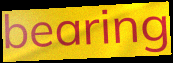
bearing